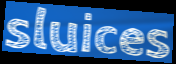
sluices